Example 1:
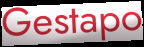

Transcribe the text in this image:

Gestapo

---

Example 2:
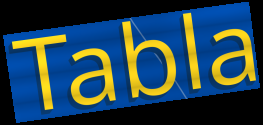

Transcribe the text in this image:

Tabla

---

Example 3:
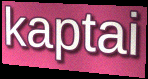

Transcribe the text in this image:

kaptai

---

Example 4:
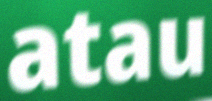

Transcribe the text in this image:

atau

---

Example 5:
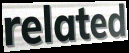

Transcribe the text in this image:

related